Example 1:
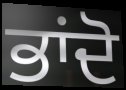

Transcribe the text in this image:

ਭਾਂਦੋ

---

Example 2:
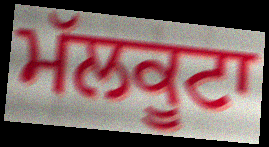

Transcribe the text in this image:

ਮੱਲਕੂਟਾ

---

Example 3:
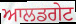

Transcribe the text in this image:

ਆਲਡਗੇਟ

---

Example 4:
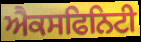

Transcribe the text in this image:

ਐਕਸਫਿਨਿਟੀ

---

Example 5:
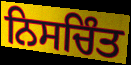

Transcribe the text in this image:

ਨਿਸਚਿੰਤ